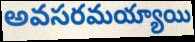
అవసరమయ్యాయి